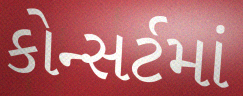
કોન્સર્ટમાં